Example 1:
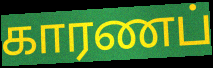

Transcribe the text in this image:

காரணப்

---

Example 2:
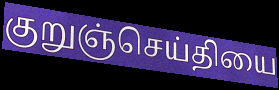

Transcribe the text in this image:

குறுஞ்செய்தியை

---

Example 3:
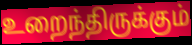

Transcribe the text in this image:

உறைந்திருக்கும்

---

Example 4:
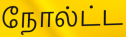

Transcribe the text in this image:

நோல்ட்ட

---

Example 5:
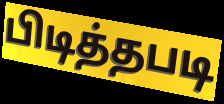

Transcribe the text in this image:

பிடித்தபடி